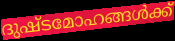
ദുഷ്ടമോഹങ്ങൾക്ക്